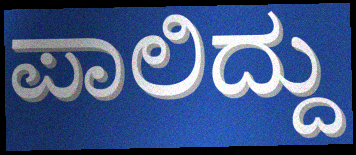
ಪಾಲಿದ್ದು